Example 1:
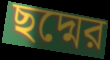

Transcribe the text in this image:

ছদ্মের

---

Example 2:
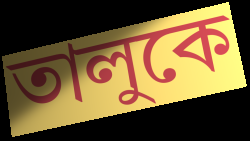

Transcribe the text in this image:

তালুকে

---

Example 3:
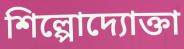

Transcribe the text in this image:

শিল্পোদ্যোক্তা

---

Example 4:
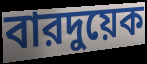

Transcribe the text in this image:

বারদুয়েক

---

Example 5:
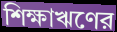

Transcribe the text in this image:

শিক্ষাঋণের